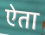
ऐता